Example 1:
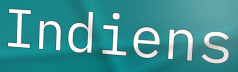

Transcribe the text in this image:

Indiens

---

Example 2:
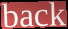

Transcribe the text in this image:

back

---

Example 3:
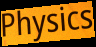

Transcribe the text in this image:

Physics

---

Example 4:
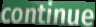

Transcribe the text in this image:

continue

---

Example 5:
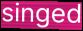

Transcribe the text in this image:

singed